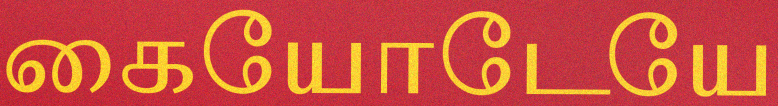
கையோடேயே